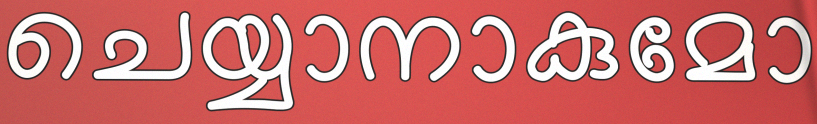
ചെയ്യാനാകുമോ